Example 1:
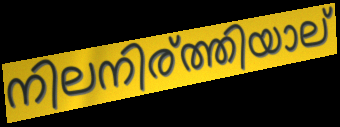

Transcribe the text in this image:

നിലനിര്ത്തിയാല്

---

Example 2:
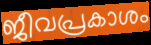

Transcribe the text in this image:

ജീവപ്രകാശം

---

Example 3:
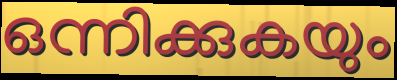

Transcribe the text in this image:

ഒന്നിക്കുകയും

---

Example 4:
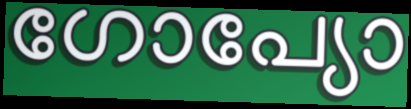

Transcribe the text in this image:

ഗോപ്യോ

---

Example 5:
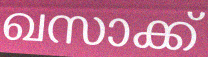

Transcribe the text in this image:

ഖസാക്ക്